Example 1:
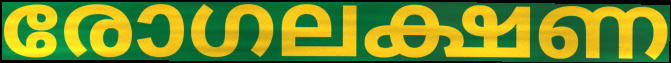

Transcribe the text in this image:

രോഗലക്ഷണ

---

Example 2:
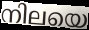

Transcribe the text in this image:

നിലയെ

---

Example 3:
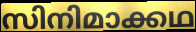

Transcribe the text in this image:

സിനിമാക്കഥ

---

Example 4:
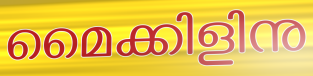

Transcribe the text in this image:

മൈക്കിളിനു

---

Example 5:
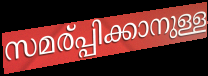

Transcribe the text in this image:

സമര്പ്പിക്കാനുള്ള